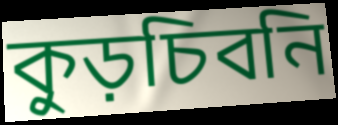
কুড়চিবনি